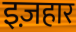
इज़हार